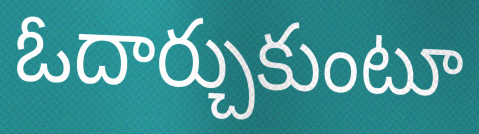
ఓదార్చుకుంటూ